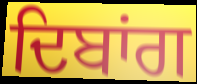
ਦਿਬਾਂਗ